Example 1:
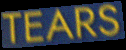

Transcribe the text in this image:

TEARS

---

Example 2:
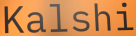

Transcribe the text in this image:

Kalshi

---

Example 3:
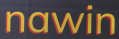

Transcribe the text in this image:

nawin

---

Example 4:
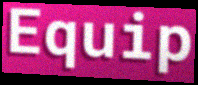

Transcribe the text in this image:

Equip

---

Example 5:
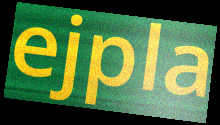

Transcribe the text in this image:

ejpla